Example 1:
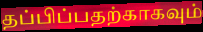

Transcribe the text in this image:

தப்பிப்பதற்காகவும்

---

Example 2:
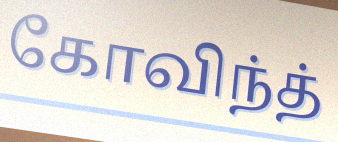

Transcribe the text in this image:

கோவிந்த்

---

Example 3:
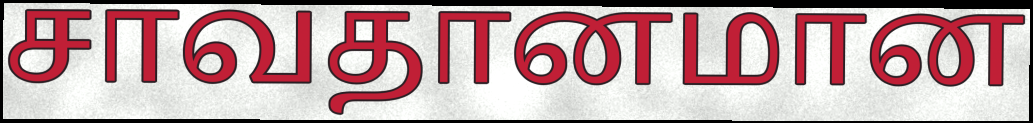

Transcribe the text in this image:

சாவதானமான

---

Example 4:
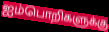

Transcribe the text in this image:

ஐம்பொறிகளுக்கு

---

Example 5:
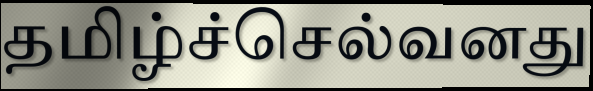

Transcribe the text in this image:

தமிழ்ச்செல்வனது